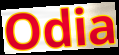
Odia